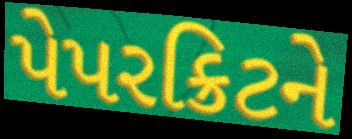
પેપરક્રિટને